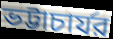
ভট্টাচার্যর